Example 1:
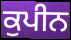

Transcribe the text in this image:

ਕੁਪੀਨ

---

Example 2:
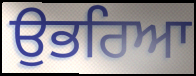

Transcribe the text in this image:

ਉਭਰਿਆ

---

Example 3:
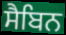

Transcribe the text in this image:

ਸੈਬਿਨ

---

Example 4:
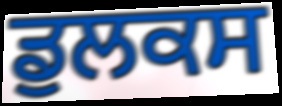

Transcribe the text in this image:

ਡੁਲਕਸ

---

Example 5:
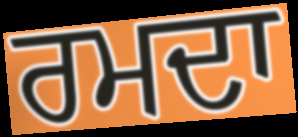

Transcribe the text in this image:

ਰਮਦਾ